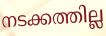
നടക്കത്തില്ല